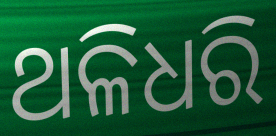
ଥଳିଧରି